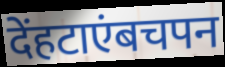
देंहटाएंबचपन